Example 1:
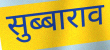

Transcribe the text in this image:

सुब्बाराव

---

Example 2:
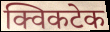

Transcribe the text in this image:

क्विकटेक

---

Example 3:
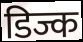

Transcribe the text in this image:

डिज्क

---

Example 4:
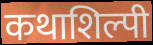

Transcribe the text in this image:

कथाशिल्पी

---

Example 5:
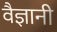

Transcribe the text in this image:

वैज्ञानी